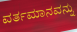
ವರ್ತಮಾನವನ್ನು